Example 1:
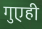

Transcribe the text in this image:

गुएही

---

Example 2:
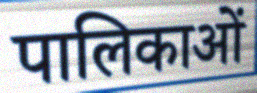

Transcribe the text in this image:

पालिकाओं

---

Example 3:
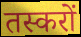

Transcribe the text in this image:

तस्करों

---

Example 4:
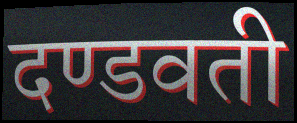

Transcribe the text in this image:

दण्डवती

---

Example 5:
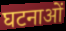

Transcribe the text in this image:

घटनाओं